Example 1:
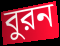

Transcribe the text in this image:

বুরন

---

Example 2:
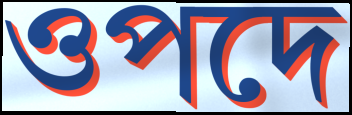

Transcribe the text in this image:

ওপদে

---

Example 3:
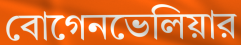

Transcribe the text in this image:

বোগেনভেলিয়ার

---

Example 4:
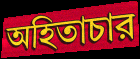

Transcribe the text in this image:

অহিতাচার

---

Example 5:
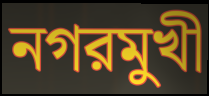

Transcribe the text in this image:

নগরমুখী